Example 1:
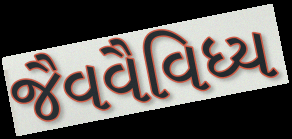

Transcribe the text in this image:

જૈવવૈવિધ્ય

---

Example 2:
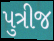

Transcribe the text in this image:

પુત્રીજ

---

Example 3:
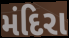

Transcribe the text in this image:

મંદિરા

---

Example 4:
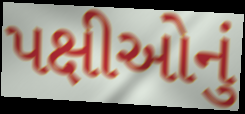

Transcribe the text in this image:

પક્ષીઓનું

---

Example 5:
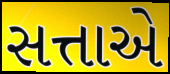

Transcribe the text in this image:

સત્તાએ